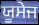
ਯੂਸੇਜ